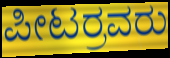
ಪೀಟರ್‍ರವರು